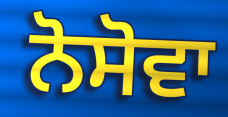
ਨੋਸੋਵਾ